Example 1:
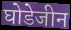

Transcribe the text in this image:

घोडेजीन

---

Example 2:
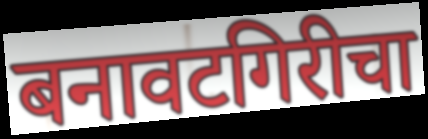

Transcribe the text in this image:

बनावटगिरीचा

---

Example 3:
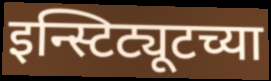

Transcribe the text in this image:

इन्स्टिट्यूटच्या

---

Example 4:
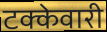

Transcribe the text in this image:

टक्केवारी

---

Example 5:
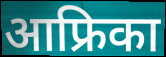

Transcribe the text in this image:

आफ्रिका